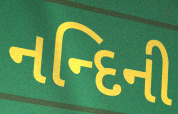
નન્દિની